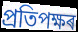
প্ৰতিপক্ষৰ